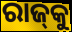
ରାଜ୍‍କୁ